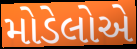
મોડેલોએ